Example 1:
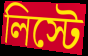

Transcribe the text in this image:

লিস্টে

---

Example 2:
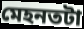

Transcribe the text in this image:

মেহনতটা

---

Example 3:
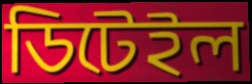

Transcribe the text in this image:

ডিটেইল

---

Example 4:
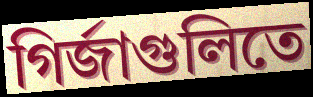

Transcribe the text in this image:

গির্জাগুলিতে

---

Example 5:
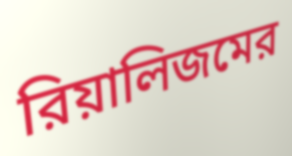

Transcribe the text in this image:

রিয়ালিজমের